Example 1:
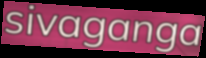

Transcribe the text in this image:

sivaganga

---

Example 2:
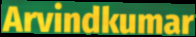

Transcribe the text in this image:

Arvindkumar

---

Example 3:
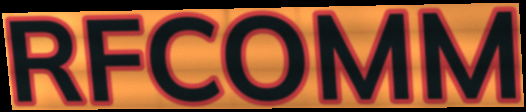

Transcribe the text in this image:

RFCOMM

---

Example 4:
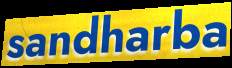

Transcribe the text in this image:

sandharba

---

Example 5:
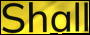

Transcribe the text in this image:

Shall